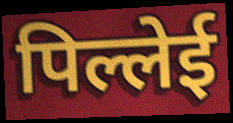
पिल्लेई